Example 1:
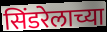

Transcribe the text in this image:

सिंडरेलाच्या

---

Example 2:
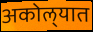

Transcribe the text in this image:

अकोल्यात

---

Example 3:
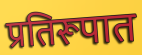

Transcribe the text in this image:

प्रतिरूपात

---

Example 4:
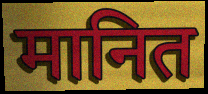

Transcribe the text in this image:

मानित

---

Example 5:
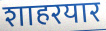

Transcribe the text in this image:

शाहरयार